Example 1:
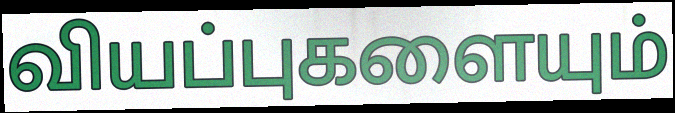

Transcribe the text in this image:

வியப்புகளையும்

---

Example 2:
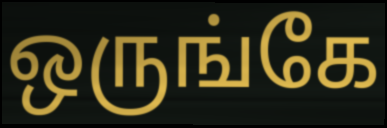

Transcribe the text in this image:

ஒருங்கே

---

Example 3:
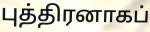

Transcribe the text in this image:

புத்திரனாகப்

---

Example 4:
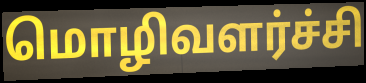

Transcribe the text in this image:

மொழிவளர்ச்சி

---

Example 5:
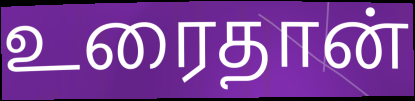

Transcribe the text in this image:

உரைதான்